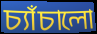
চ্যাঁচালো